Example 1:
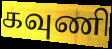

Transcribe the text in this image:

கவுணி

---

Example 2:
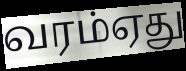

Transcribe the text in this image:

வரம்ஏது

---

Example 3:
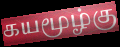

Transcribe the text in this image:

கயமூழ்கு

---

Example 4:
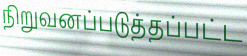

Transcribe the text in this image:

நிறுவனப்படுத்தப்பட்ட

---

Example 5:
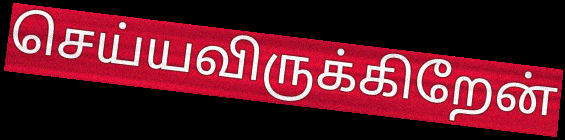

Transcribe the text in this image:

செய்யவிருக்கிறேன்